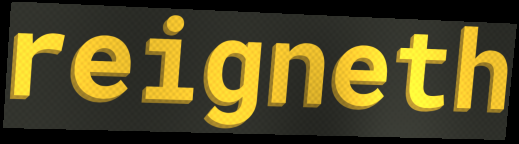
reigneth